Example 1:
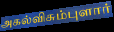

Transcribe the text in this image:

அகல்விசும்புளார்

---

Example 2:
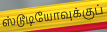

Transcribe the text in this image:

ஸ்டூடியோவுக்குப்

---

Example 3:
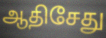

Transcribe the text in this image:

ஆதிசேது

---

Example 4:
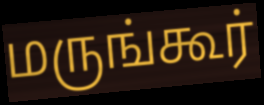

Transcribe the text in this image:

மருங்கூர்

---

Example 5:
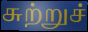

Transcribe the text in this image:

சுற்றுச்